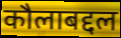
कौलाबद्दल